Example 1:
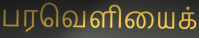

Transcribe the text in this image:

பரவெளியைக்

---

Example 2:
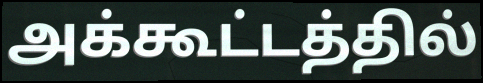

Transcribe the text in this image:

அக்கூட்டத்தில்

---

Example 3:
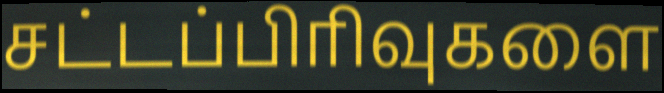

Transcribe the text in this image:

சட்டப்பிரிவுகளை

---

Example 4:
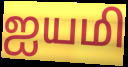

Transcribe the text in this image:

ஐயமி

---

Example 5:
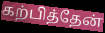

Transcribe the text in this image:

கற்பித்தேன்